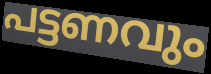
പട്ടണവും